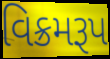
વિક્રમરૂપ